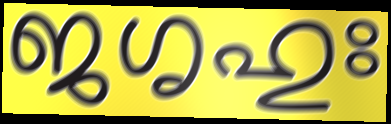
ജഗൃഹുഃ